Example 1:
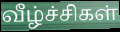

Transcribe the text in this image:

வீழ்ச்சிகள்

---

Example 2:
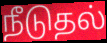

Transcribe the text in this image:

நீடுதல்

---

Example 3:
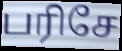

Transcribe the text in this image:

பரிசே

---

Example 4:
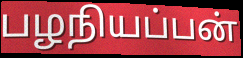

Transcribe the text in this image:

பழநியப்பன்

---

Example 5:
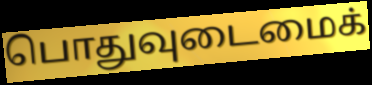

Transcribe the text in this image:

பொதுவுடைமைக்